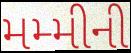
મમ્મીની